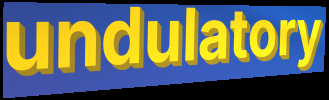
undulatory